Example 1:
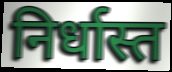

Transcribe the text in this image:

निर्धास्त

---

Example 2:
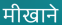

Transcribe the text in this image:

मीखाने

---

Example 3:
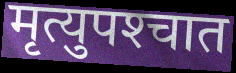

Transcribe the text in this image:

मृत्युपश्‍चात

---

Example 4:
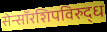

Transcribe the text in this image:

सेन्सॉरशिपविरुद्ध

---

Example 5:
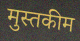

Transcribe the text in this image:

मुस्तकीम